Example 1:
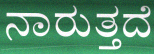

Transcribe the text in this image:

ನಾರುತ್ತದೆ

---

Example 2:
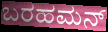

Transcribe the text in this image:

ಬರಹಮನ್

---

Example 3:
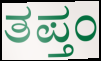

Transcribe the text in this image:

ತಪ್ತಂ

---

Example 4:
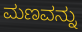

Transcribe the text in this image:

ಮಣವನ್ನು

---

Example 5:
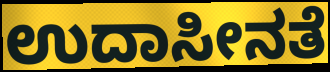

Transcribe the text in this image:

ಉದಾಸೀನತೆ